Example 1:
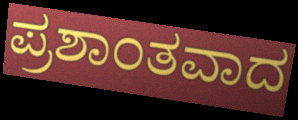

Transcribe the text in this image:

ಪ್ರಶಾಂತವಾದ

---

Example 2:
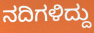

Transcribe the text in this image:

ನದಿಗಳಿದ್ದು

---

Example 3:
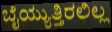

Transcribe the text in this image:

ಬೈಯ್ಯುತ್ತಿರಲಿಲ್ಲ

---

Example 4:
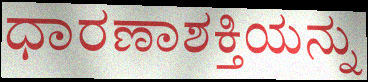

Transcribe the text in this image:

ಧಾರಣಾಶಕ್ತಿಯನ್ನು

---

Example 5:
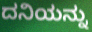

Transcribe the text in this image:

ದನಿಯನ್ನು